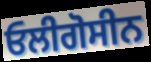
ਓਲੀਗੋਸੀਨ